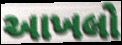
આખલો